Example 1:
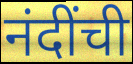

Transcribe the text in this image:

नंदींची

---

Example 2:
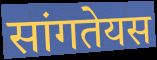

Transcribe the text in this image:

सांगतेयस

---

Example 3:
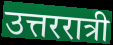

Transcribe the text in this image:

उत्तररात्री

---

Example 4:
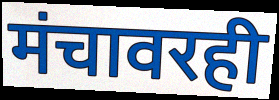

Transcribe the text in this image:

मंचावरही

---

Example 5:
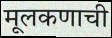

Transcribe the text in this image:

मूलकणाची